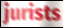
jurists